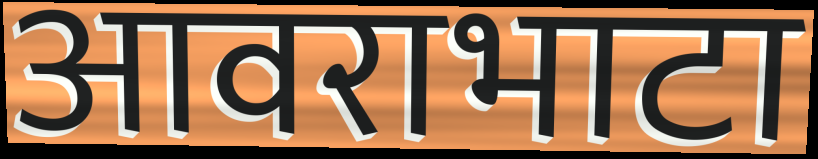
आवराभाटा